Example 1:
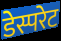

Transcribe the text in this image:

डेस्परेट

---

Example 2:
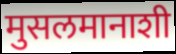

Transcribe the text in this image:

मुसलमानाशी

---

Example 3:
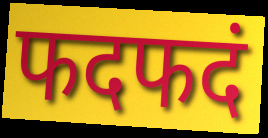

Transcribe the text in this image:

फदफदं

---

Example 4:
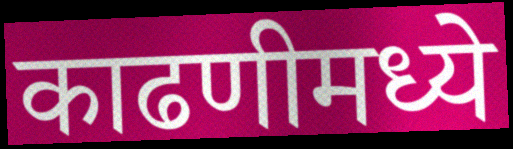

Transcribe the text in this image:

काढणीमध्ये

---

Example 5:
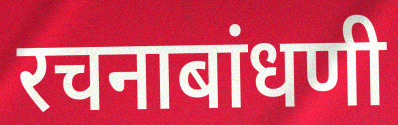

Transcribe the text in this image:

रचनाबांधणी